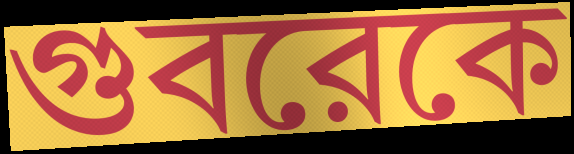
গুবরেকে